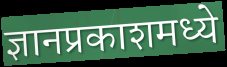
ज्ञानप्रकाशमध्ये